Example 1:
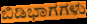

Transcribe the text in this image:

ಬಿಡಿಭಾಗಗಳು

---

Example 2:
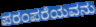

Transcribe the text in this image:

ಪರಂಪರೆಯವನು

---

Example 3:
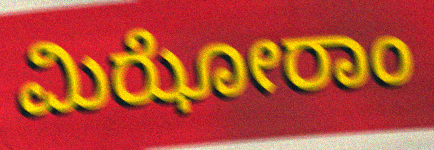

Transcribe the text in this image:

ಮಿಝೋರಾಂ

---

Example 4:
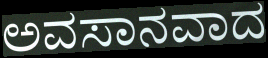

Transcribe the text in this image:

ಅವಸಾನವಾದ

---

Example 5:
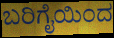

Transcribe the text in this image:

ಬರಿಗೈಯಿಂದ